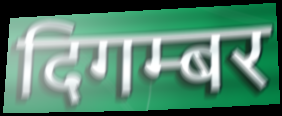
दिगम्बर